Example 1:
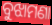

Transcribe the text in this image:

ବୁଝାମଣା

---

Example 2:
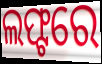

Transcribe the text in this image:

ଲଫ୍ଟରେ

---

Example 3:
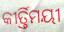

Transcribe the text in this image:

କୀର୍ତ୍ତିମୟୀ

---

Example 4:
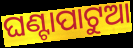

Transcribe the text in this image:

ଘଣ୍ଟାପାଟୁଆ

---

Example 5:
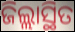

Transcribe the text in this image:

ଜିଲ୍ଲାସ୍ଥିତ